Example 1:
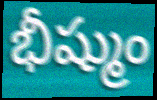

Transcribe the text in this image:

భీష్ముం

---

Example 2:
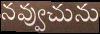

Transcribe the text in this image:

నవ్వుచును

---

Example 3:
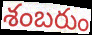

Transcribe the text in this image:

శంబరుం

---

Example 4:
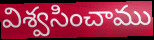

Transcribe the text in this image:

విశ్వసించాము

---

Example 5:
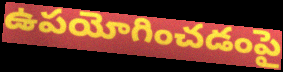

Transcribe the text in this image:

ఉపయోగించడంపై